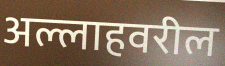
अल्लाहवरील